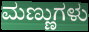
ಮಣ್ಣುಗಳು